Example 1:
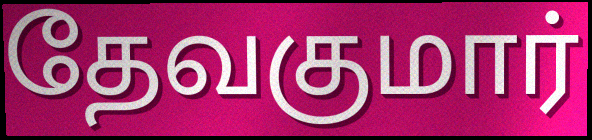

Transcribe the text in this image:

தேவகுமார்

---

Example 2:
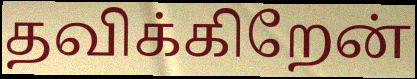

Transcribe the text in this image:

தவிக்கிறேன்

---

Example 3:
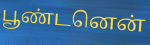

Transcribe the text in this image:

பூண்டனென்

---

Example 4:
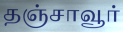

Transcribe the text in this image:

தஞ்சாவூர்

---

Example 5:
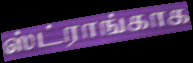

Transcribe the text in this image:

ஸ்ட்ராங்காக